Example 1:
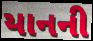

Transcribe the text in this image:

યાનની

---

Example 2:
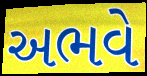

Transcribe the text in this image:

અભવે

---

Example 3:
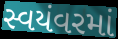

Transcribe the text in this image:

સ્વયંવરમાં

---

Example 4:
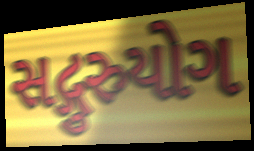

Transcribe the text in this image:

સદ્ગુરુયોગ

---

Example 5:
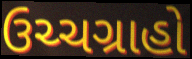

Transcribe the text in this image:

ઉચ્ચગ્રાહો